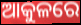
ଆକୁଳରେ